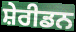
ਸ਼ੇਰੀਡਨ